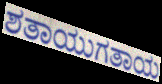
ಶತಾಯುಗತಾಯ